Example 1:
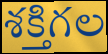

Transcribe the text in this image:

శక్తిగల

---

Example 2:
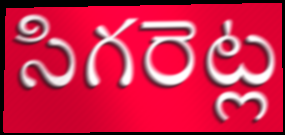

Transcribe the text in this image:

సిగరెట్ల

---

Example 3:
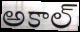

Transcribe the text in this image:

అకాల్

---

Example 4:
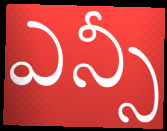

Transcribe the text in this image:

ఎన్సీ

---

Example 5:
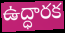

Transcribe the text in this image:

ఉద్ధారక